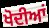
ਖੋਦੀਆਂ